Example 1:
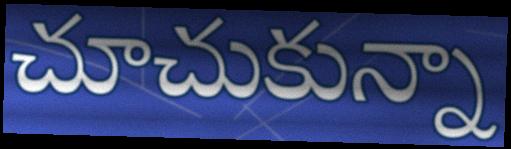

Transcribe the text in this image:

చూచుకున్నా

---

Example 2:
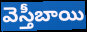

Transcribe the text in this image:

వెస్తీబాయి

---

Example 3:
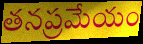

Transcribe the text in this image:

తనప్రమేయం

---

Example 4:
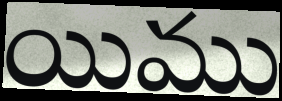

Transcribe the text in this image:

యిము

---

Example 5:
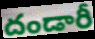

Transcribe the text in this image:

దండారీ